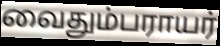
வைதும்பராயர்